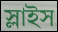
স্লাইস